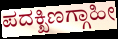
ಪದಕ್ಖಿಣಗ್ಗಾಹೀ